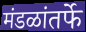
मंडळांतर्फे